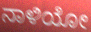
ನಾಳಿಯೋ